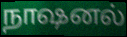
நாஷனல்